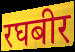
रघबीर